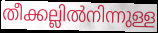
തീക്കല്ലിൽനിന്നുള്ള